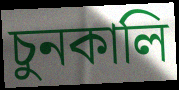
চুনকালি